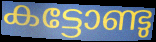
കട്ടോണ്ടു